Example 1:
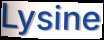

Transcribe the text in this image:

Lysine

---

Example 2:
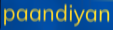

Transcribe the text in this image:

paandiyan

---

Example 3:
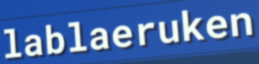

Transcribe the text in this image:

lablaeruken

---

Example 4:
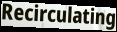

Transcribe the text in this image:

Recirculating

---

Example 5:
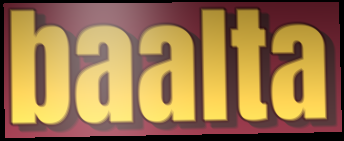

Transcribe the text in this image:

baalta